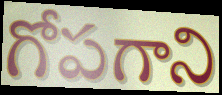
గోపగాని